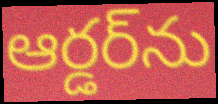
ఆర్డర్‌ను